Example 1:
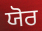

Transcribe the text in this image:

ਯੋਰ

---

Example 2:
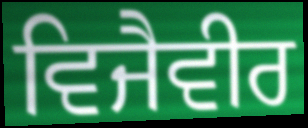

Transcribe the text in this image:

ਵਿਜੈਵੀਰ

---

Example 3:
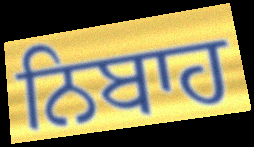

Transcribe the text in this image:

ਨਿਬਾਹ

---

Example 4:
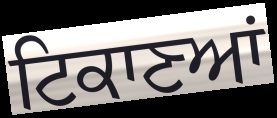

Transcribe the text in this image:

ਟਿਕਾਣਆਂ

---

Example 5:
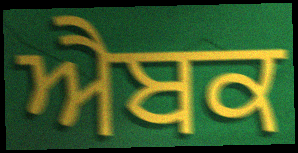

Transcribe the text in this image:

ਐਬਕ